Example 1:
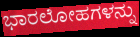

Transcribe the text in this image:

ಭಾರಲೋಹಗಳನ್ನು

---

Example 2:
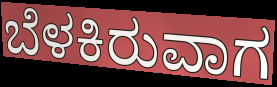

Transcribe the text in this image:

ಬೆಳಕಿರುವಾಗ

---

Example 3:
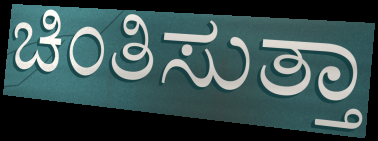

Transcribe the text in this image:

ಚಿಂತಿಸುತ್ತಾ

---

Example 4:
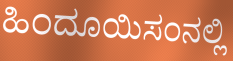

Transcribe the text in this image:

ಹಿಂದೂಯಿಸಂನಲ್ಲಿ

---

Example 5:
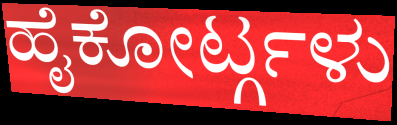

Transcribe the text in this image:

ಹೈಕೋರ್ಟ್ಗಳು